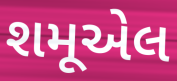
શમૂએલ